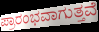
ಪ್ರಾರಂಭವಾಗುತ್ತವೆ